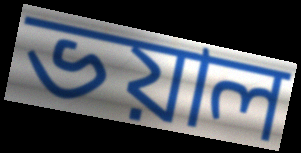
ভয়াল